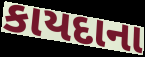
કાયદાના